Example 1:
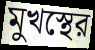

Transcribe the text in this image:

মুখস্থের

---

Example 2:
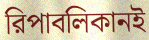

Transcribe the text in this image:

রিপাবলিকানই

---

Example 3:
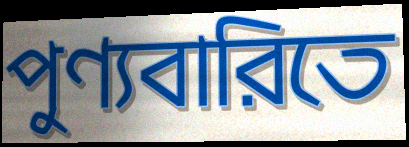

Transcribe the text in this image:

পুণ্যবারিতে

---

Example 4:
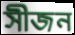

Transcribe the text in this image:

সীজন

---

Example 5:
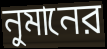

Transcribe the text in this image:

নুমানের